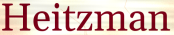
Heitzman